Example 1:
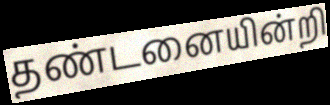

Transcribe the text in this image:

தண்டனையின்றி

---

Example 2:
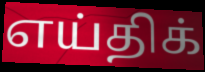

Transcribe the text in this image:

எய்திக்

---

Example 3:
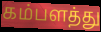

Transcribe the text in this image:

கம்பளத்து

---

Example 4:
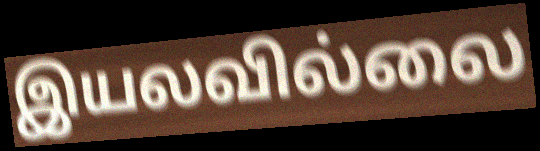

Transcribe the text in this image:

இயலவில்லை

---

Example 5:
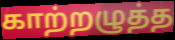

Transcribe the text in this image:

காற்றழுத்த